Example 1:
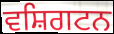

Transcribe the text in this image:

ਵਸ਼ਿਗਟਨ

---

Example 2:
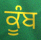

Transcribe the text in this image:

ਕੂੰਬ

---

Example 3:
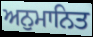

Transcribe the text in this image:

ਅਨੁਮਾਨਿਤ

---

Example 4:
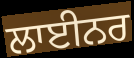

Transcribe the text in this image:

ਲਾਈਨਰ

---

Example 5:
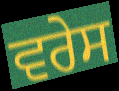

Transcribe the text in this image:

ਵਰੇਸ